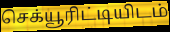
செக்யூரிட்டியிடம்